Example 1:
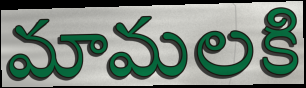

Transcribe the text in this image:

మామలకి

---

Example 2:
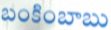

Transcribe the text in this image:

బంకింబాబు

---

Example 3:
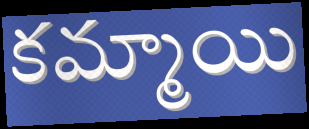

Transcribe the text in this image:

కమ్మాయి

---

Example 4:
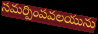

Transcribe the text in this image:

సమర్పింపవలయును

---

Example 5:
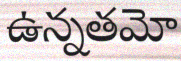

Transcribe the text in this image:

ఉన్నతమో